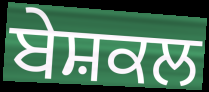
ਬੇਸ਼ਕਲ